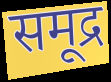
समूद्र